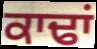
ਕਾਢਾਂ